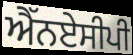
ਐੱਨਏਸੀਪੀ